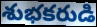
శుభకరుడి